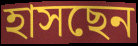
হাসছেন